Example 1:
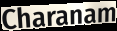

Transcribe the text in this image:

Charanam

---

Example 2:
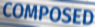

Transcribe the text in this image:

COMPOSED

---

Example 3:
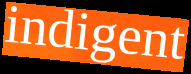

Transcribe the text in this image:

indigent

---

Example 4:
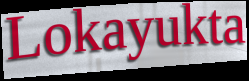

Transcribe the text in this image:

Lokayukta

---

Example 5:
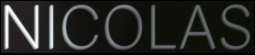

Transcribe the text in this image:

NICOLAS